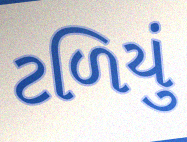
ટળિયું